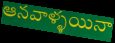
ఆనవాళ్ళయినా